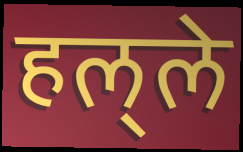
हल्ले